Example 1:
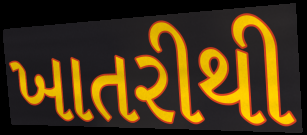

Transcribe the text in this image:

ખાતરીથી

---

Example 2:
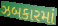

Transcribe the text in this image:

ઝબકારમાં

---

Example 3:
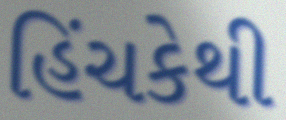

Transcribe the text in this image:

હિંચકેથી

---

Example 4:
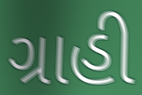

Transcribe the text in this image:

ગ્રાહી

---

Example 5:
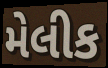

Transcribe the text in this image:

મેલીક